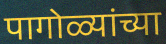
पागोळ्यांच्या